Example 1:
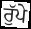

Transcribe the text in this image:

ਰੁੱਪੇ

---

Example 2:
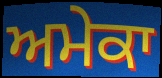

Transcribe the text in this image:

ਅਮੇਕਾ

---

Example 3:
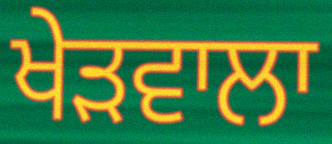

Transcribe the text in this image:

ਖੇੜਵਾਲਾ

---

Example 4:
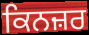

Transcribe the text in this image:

ਕਿਨਜ਼ਰ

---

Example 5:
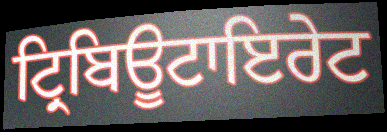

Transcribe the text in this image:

ਟ੍ਰਿਬਿਊਟਾਇਰੇਟ